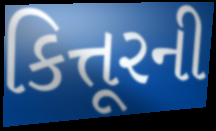
કિત્તૂરની